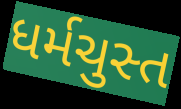
ધર્મચુસ્ત